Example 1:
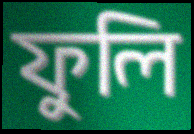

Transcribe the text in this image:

ফুলি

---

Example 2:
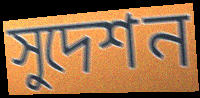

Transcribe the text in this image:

সুদেশন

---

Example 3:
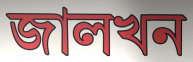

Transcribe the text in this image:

জালখন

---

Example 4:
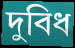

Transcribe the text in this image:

দুবিধ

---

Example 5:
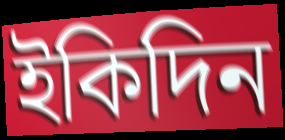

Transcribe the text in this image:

ইকিদিন